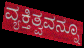
ವ್ಯಕ್ತಿತ್ವವನ್ನೂ